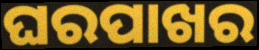
ଘରପାଖର